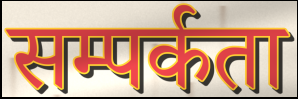
सम्पर्कता